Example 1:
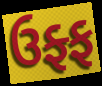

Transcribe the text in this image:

ઉફ્ફ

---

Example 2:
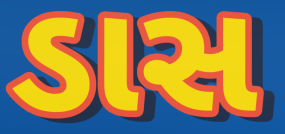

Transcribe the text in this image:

ડાસ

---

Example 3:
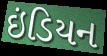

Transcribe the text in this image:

ઇંડિયન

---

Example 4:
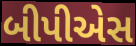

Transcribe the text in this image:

બીપીએસ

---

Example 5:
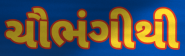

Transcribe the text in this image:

ચૌભંગીથી